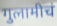
गुलामीचं